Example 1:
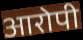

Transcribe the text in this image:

आरोपी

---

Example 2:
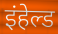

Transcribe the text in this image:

इंहेल्ड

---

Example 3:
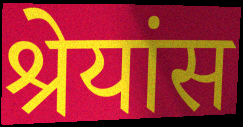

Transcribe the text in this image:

श्रेयांस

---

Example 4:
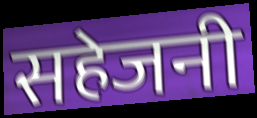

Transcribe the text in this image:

सहेजनी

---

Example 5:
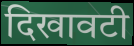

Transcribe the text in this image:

दिखावटी